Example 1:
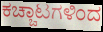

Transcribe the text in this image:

ಕಚ್ಚಾಟಗಳಿಂದ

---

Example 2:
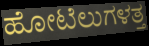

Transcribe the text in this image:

ಹೋಟೆಲುಗಳತ್ತ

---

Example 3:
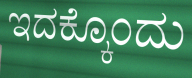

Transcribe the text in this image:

ಇದಕ್ಕೊಂದು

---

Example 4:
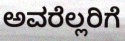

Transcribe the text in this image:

ಅವರೆಲ್ಲರಿಗೆ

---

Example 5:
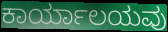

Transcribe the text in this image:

ಕಾರ್ಯಾಲಯವು